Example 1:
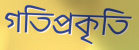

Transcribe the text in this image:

গতিপ্রকৃতি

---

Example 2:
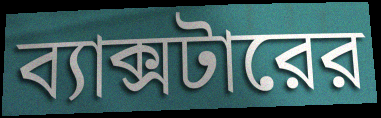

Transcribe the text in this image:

ব্যাক্সটারের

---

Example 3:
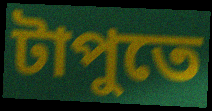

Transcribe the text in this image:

টাপুতে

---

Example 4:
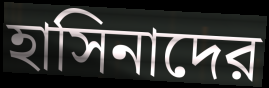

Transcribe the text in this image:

হাসিনাদের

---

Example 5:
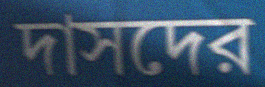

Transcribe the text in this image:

দাসদের